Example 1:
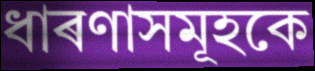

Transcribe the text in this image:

ধাৰণাসমূহকে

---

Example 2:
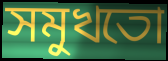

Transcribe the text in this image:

সমুখতো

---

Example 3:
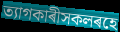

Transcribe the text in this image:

ত্যাগকাৰীসকলৰহে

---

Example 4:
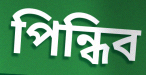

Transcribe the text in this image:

পিন্ধিব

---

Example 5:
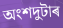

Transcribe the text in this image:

অংশদুটাৰ